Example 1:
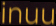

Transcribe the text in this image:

inuu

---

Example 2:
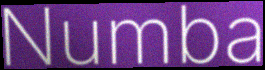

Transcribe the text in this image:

Numba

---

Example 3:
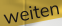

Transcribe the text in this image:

weiten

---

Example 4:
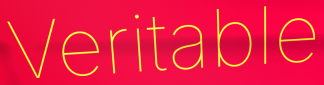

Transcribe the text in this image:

Veritable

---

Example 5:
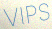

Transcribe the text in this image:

VIPS